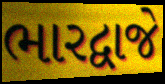
ભારદ્વાજે